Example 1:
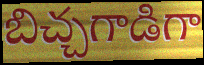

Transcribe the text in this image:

బిచ్చగాడిగా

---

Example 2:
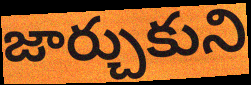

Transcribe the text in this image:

జార్చుకుని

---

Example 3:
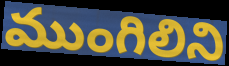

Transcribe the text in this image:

ముంగిలిని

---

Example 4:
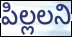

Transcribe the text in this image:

పిల్లలని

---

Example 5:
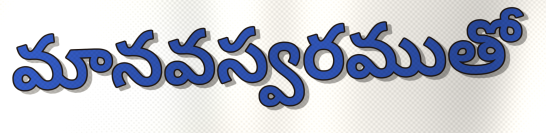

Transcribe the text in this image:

మానవస్వరముతో